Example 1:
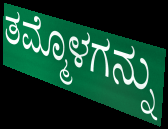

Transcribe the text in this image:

ತಮ್ಮೊಳಗನ್ನು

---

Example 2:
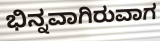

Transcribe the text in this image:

ಭಿನ್ನವಾಗಿರುವಾಗ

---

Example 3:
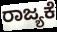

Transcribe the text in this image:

ರಾಜ್ಯಕೆ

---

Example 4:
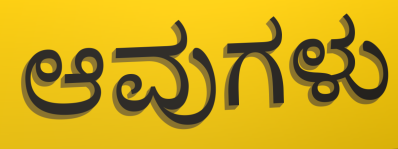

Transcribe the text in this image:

ಆವುಗಳು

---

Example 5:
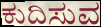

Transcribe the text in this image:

ಕುದಿಸುವ